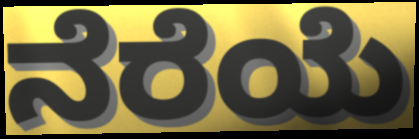
ನೆರೆಯೆ